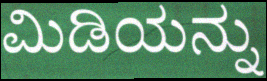
ಮಿಡಿಯನ್ನು